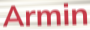
Armin